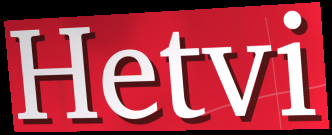
Hetvi